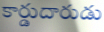
కార్డుదారుడు